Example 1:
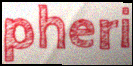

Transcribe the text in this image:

pheri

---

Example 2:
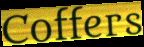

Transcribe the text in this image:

Coffers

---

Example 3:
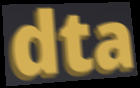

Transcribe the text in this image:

dta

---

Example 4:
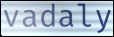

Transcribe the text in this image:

vadaly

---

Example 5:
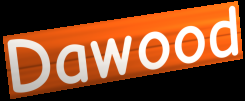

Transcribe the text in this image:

Dawood